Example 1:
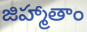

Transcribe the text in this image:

జిహ్మాతాం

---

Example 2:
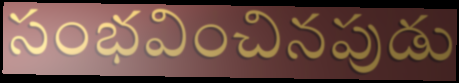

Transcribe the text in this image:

సంభవించినపుడు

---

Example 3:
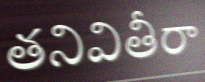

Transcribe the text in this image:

తనివితీరా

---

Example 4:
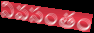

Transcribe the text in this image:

నివసంతం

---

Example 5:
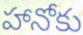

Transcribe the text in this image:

హానోకు